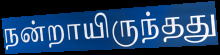
நன்றாயிருந்தது